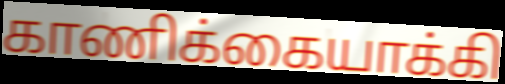
காணிக்கையாக்கி